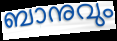
ബാനുവും